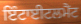
ਇੰਟਾਈਟਲਮੈਂਟ